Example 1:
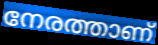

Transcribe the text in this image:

നേരത്താണ്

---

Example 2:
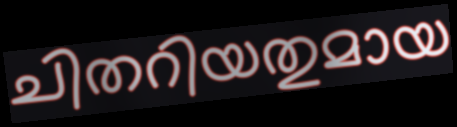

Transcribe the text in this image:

ചിതറിയതുമായ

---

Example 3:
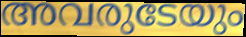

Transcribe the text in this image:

അവരുടേയും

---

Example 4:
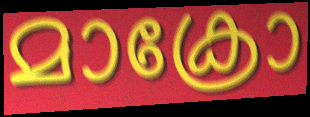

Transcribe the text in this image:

മാക്രോ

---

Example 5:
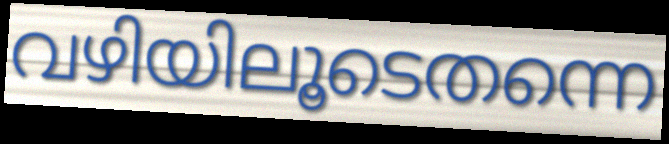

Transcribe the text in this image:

വഴിയിലൂടെതന്നെ